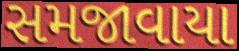
સમજાવાયા